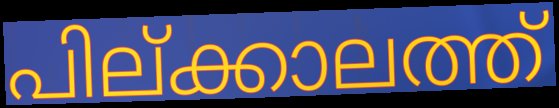
പില്ക്കാലത്ത്